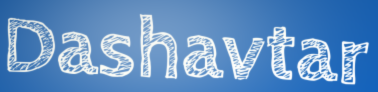
Dashavtar